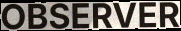
OBSERVER